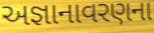
અજ્ઞાનાવરણના